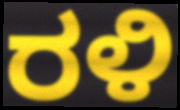
ರಳಿ